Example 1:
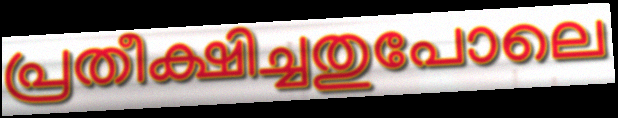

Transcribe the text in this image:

പ്രതീക്ഷിച്ചതുപോലെ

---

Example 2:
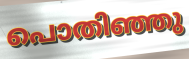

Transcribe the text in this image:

പൊതിഞ്ഞു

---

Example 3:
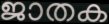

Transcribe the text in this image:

ജാതക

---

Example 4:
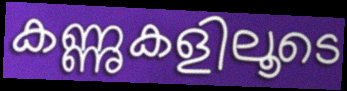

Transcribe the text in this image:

കണ്ണുകളിലൂടെ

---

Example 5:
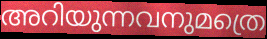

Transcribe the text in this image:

അറിയുന്നവനുമത്രെ